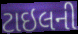
ટાઇલની